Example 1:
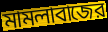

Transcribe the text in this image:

মামলাবাজের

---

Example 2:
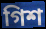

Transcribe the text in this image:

গিশ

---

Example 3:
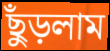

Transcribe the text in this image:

ছুঁড়লাম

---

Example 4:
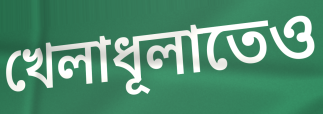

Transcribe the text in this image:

খেলাধূলাতেও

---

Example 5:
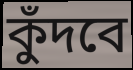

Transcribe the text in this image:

কুঁদবে